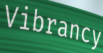
Vibrancy